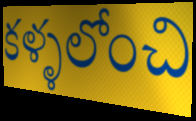
కళ్ళలోంచి